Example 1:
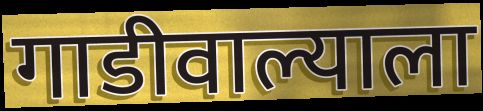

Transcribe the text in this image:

गाडीवाल्याला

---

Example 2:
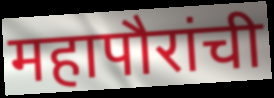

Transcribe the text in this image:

महापौरांची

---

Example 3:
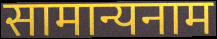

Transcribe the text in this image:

सामान्यनाम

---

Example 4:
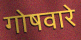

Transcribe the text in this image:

गोषवारे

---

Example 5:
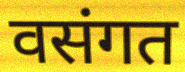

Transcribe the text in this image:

वसंगत